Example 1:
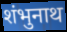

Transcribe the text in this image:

शंभुनाथ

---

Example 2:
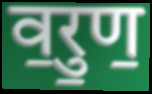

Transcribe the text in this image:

व॒रु॒ण॒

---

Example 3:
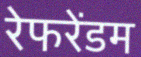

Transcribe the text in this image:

रेफरेंडम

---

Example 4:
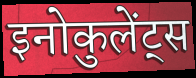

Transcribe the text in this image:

इनोकुलेंट्स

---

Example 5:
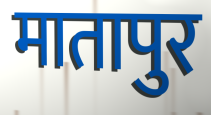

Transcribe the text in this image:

मातापुर